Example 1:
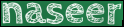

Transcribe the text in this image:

naseer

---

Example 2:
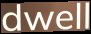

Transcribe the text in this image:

dwell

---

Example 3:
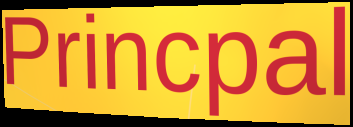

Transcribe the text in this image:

Princpal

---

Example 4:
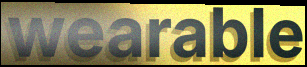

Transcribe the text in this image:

wearable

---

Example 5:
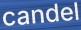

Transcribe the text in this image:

candel